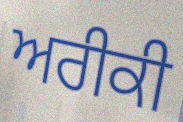
ਅਰੀਕੀ